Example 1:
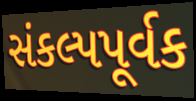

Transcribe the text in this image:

સંકલ્પપૂર્વક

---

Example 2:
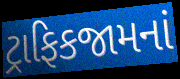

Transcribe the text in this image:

ટ્રાફિકજામનાં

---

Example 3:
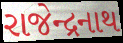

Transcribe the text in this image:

રાજેન્દ્રનાથ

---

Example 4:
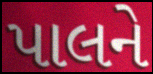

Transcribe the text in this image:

પાલને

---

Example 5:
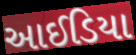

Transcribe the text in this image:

આઈડિયા